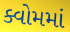
ક્વોમમાં